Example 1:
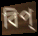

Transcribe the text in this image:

বিপ্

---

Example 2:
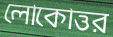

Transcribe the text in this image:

লোকোত্তর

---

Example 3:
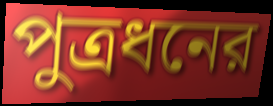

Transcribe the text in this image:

পুত্রধনের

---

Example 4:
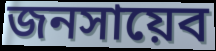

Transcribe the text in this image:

জনসায়েব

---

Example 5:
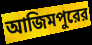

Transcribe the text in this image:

আজিমপুরের